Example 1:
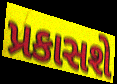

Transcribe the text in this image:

પ્રકાસશે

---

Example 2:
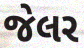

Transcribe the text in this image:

જેલર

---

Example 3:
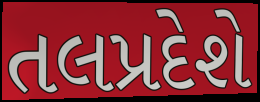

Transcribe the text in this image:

તલપ્રદેશે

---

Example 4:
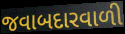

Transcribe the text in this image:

જવાબદારવાળી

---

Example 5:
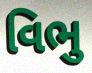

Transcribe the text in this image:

વિભુ